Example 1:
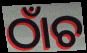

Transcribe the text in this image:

ଠାଁଚ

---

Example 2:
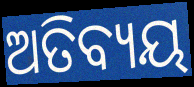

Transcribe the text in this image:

ଅତିବ୍ୟୟ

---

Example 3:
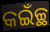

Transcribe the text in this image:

କଇଁଚ୍ଛ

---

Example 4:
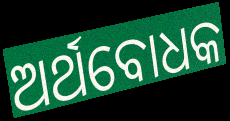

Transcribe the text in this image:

ଅର୍ଥବୋଧକ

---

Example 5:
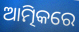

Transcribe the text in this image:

ଆତ୍ମିକରେ